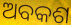
ଅବକଶ